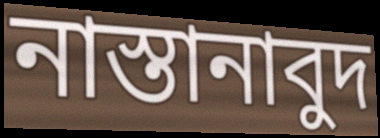
নাস্তানাবুদ